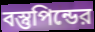
বস্তুপিন্ডের